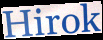
Hirok